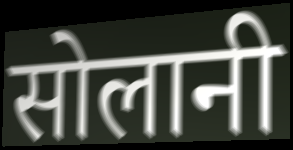
सोलानी